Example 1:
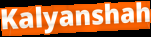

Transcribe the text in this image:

Kalyanshah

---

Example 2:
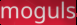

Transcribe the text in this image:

moguls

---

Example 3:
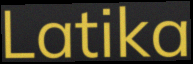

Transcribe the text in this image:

Latika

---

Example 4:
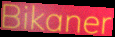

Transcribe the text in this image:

Bikaner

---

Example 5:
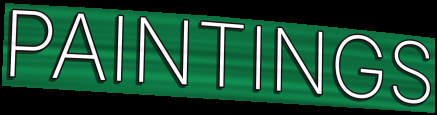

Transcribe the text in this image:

PAINTINGS